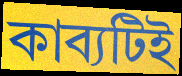
কাব্যটিই